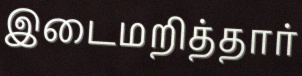
இடைமறித்தார்